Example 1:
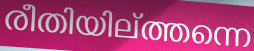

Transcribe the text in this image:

രീതിയില്ത്തന്നെ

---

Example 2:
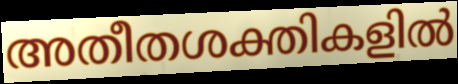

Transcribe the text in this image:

അതീതശക്തികളിൽ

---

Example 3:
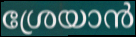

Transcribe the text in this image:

ശ്രേയാൻ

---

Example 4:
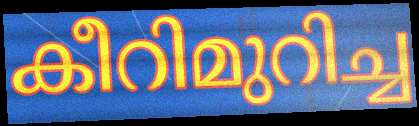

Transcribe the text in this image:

കീറിമുറിച്ച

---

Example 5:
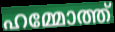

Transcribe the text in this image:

ഹമ്മോത്ത്